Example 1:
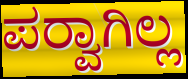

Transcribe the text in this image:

ಪರ‍್ವಾಗಿಲ್ಲ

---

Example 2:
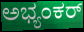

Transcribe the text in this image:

ಅಭ್ಯಂಕರ್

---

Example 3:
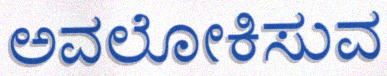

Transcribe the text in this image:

ಅವಲೋಕಿಸುವ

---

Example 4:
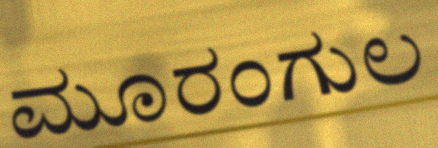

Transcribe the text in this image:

ಮೂರಂಗುಲ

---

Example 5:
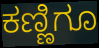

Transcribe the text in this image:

ಕಣ್ಣಿಗೂ